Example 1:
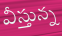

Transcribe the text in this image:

వీస్తున్న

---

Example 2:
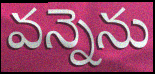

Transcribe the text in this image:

వన్నెను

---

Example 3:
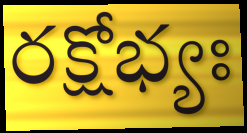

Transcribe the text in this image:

రక్షోభ్యః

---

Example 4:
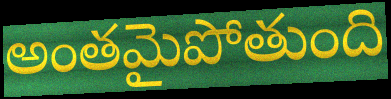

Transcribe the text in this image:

అంతమైపోతుంది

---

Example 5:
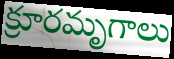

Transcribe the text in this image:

క్రూరమృగాలు